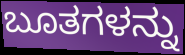
ಬೂತಗಳನ್ನು